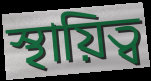
স্থায়িত্ব